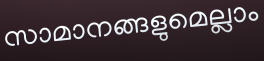
സാമാനങ്ങളുമെല്ലാം